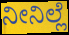
ನೀನಿಲ್ಲೆ